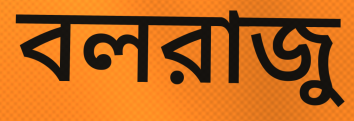
বলরাজু